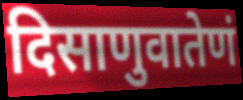
दिसाणुवातेणं